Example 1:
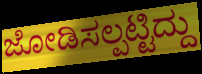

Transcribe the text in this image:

ಜೋಡಿಸಲ್ಪಟ್ಟಿದ್ದು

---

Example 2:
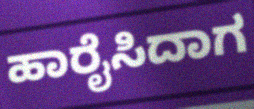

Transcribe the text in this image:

ಹಾರೈಸಿದಾಗ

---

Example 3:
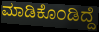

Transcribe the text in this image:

ಮಾಡಿಕೊಂಡಿದ್ದೆ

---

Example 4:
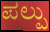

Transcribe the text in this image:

ಪಲ್ಪು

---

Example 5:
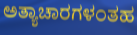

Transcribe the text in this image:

ಅತ್ಯಾಚಾರಗಳಂತಹ